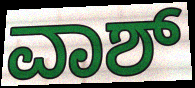
ವಾಶ್